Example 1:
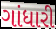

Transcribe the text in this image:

ગાંધારી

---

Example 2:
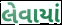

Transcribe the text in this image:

લેવાયાં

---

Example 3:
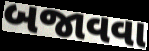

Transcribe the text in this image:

બજાવવા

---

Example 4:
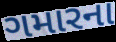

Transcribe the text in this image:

ગમારના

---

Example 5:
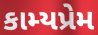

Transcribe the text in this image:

કામ્યપ્રેમ